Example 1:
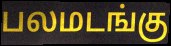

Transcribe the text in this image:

பலமடங்கு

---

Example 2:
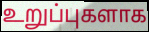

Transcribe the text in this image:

உறுப்புகளாக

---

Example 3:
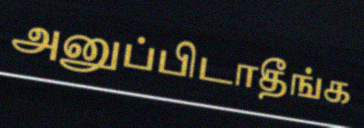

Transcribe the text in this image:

அனுப்பிடாதீங்க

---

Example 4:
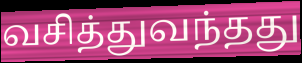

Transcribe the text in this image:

வசித்துவந்தது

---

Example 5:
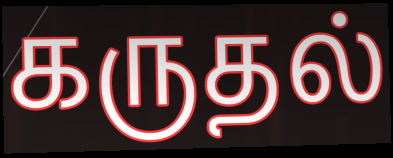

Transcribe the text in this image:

கருதல்